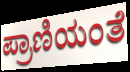
ಪ್ರಾಣಿಯಂತೆ